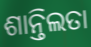
ଶାନ୍ତିଲତା